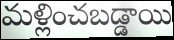
మళ్లించబడ్డాయి